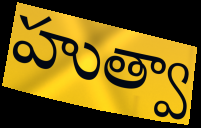
హుత్వా